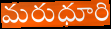
మరుధూరి